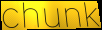
chunk